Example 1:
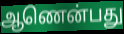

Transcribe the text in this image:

ஆணென்பது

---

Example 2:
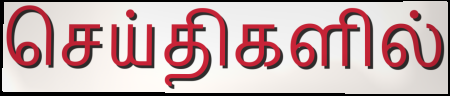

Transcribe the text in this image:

செய்திகளில்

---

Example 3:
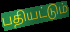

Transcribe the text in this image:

பதியட்டும்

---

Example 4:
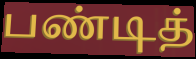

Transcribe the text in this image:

பண்டித்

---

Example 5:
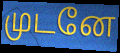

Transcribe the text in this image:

முடனே